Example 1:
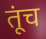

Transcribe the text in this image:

तूंच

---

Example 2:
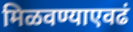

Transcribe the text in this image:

मिळवण्याएवढं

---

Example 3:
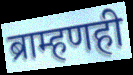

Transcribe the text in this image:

ब्राम्हणही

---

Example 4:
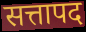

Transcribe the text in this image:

सत्तापद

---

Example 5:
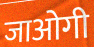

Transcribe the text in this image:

जाओगी